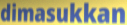
dimasukkan